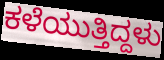
ಕಳೆಯುತ್ತಿದ್ದಳು